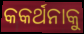
କକର୍ଥନାକୁ